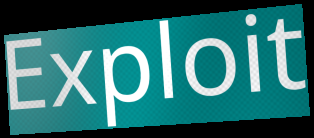
Exploit